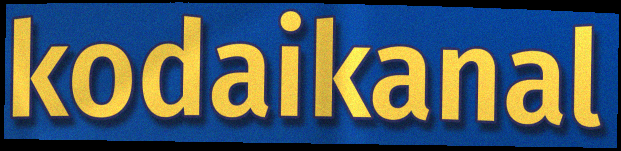
kodaikanal